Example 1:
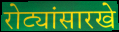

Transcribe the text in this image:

रोट्यांसारखे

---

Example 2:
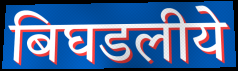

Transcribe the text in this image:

बिघडलीये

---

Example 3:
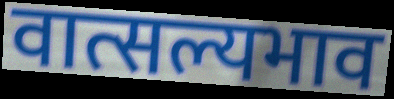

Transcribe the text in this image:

वात्सल्यभाव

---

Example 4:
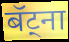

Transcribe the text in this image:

बॅट्ना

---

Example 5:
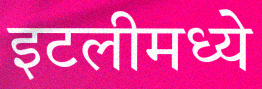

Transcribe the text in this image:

इटलीमध्ये